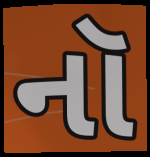
નૉ